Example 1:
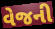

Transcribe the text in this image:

વેજની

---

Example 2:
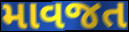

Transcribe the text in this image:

માવજત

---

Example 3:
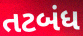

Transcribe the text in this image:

તટબંધ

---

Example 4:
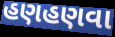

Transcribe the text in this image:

હણહણવા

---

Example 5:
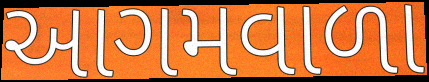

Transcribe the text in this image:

આગમવાળા